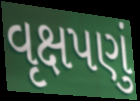
વૃક્ષપણું